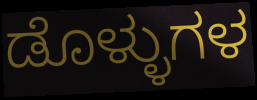
ಡೊಳ್ಳುಗಳ